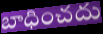
బాధించదు